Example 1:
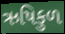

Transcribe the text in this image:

ઋષિકુળ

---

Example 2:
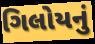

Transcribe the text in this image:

ગિલોયનું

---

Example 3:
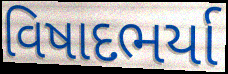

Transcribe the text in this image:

વિષાદભર્યા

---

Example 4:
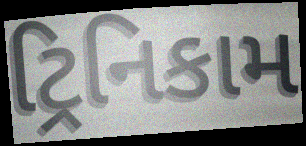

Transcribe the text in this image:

ટ્રિનિકામ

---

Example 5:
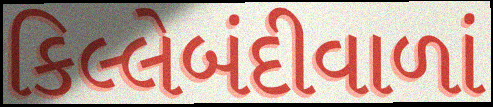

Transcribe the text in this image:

કિલ્લેબંદીવાળાં